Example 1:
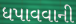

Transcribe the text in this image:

ધપાવવાની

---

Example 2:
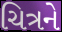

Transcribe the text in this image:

ચિત્રને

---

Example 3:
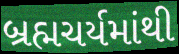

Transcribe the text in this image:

બ્રહ્મચર્યમાંથી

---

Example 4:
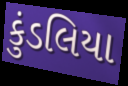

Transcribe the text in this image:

કુંડલિયા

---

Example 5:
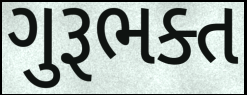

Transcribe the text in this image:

ગુરૂભક્ત